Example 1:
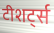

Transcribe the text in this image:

टीशर्ट्स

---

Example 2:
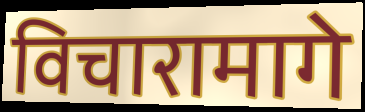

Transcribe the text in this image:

विचारामागे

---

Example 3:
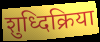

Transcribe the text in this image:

शुध्दिक्रिया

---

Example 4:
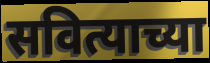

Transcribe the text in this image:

सवित्याच्या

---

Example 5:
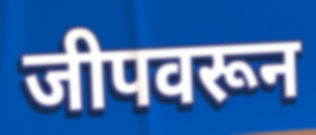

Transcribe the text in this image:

जीपवरून